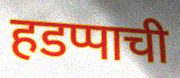
हडप्पाची